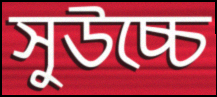
সুউচ্চে